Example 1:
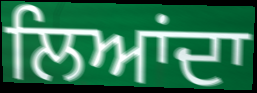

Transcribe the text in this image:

ਲਿਆਂਦਾ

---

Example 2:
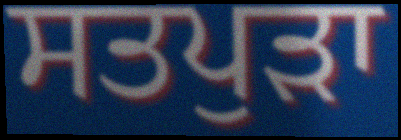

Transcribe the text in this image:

ਸਤਪੁੜਾ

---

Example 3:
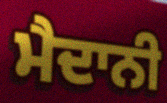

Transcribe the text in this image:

ਮੈਦਾਨੀ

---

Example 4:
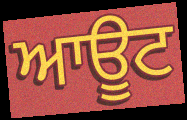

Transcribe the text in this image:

ਆਊਟ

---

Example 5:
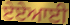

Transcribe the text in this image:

ਏਏਆਈ